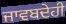
ਜਾਵਬਦੇਹੀ